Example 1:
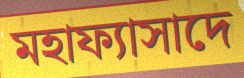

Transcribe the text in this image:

মহাফ্যাসাদে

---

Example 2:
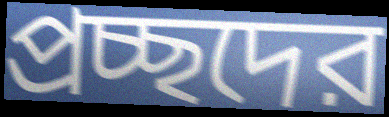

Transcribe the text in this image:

প্রচ্ছদের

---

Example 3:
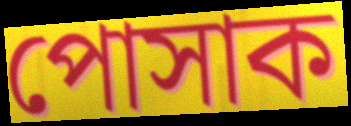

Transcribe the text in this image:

পোসাক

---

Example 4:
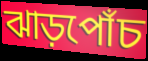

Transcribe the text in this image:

ঝাড়পোঁচ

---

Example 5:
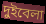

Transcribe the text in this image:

দুইবেলা